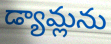
డ్యామ్లను